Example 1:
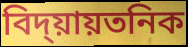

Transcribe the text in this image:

বিদ্য়ায়তনিক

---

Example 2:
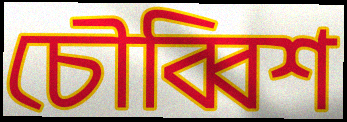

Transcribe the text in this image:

চৌব্বিশ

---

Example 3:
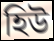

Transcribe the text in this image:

হিউ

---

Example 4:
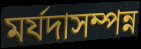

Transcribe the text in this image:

মৰ্যদাসম্পন্ন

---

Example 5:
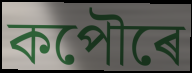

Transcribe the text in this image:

কপৌৰে